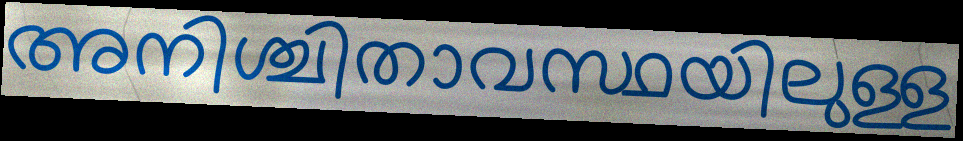
അനിശ്ചിതാവസ്ഥയിലുള്ള